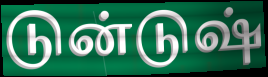
டுன்டுஷ்